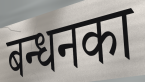
बन्धनका